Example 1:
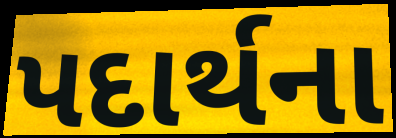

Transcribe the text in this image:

પદાર્થના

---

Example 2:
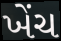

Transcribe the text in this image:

ખેંચ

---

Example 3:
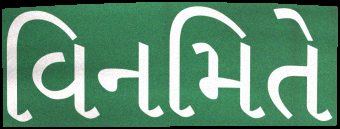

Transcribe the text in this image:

વિનમિતે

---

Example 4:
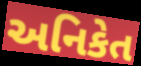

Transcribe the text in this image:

અનિકેત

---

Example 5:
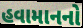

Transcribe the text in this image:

હવામાનનો